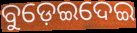
ବୁଡ଼େଇଦେଇ